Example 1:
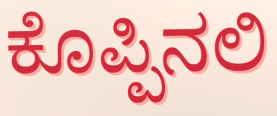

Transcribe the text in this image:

ಕೊಪ್ಪಿನಲಿ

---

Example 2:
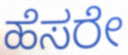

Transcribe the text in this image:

ಹೆಸರೇ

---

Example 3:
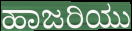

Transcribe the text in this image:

ಹಾಜರಿಯು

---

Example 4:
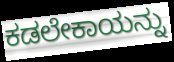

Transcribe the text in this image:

ಕಡಲೇಕಾಯನ್ನು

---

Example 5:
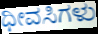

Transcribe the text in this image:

ಧೀವಸಿಗಳು